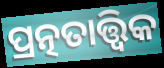
ପ୍ରତ୍ନତାତ୍ତ୍ଵିକ